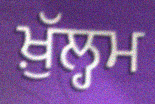
ਖ਼ੁੱਲ੍ਹਮ